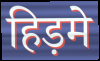
हिड़मे